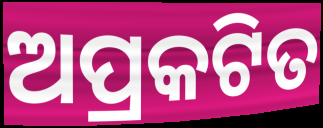
ଅପ୍ରକଟିତ